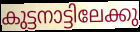
കുട്ടനാട്ടിലേക്കു